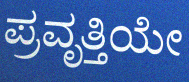
ಪ್ರವೃತ್ತಿಯೇ